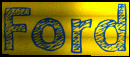
Ford